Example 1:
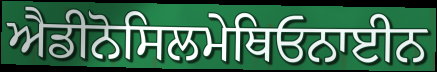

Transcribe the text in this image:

ਐਡੀਨੋਸਿਲਮੇਥਿਓਨਾਈਨ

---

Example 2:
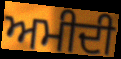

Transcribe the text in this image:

ਅਮੀਦੀ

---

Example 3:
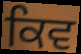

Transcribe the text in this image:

ਕਿਵ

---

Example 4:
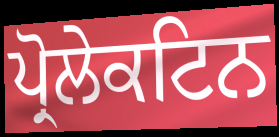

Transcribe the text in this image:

ਪ੍ਰੋਲੇਕਟਿਨ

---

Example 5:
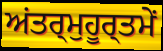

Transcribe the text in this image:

ਅਂਤਰ੍ਮੁਹੂਰ੍ਤਮੇਂ